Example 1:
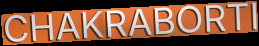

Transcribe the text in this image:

CHAKRABORTI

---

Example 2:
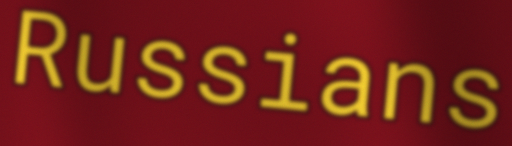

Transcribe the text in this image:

Russians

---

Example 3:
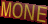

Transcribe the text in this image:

MONE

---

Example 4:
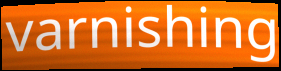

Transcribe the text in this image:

varnishing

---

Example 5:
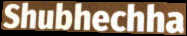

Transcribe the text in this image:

Shubhechha